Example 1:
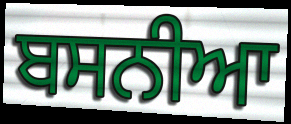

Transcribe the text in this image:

ਬਸਨੀਆ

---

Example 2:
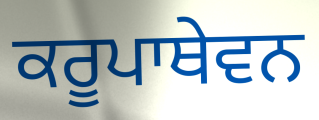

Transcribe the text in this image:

ਕਰੂਪਾਥੇਵਨ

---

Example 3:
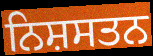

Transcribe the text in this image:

ਨਿਸ਼ਸਤਨ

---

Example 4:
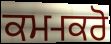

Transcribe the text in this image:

ਕਮ੍ਮਕਰੋ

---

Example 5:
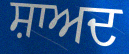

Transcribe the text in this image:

ਸ਼ਾਅਦ